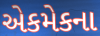
એકમેકના